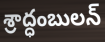
శ్రాద్ధంబులన్